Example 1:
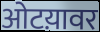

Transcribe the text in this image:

ओटय़ावर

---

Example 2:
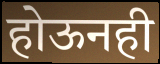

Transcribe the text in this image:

होऊनही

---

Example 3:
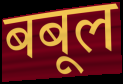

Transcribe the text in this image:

बबूल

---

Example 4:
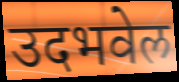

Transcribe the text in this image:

उदभवेल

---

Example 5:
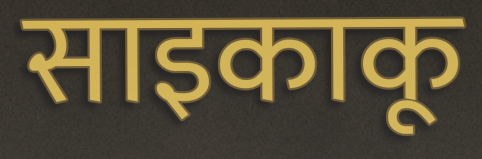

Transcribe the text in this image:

साइकाकू